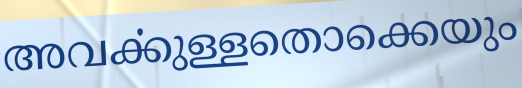
അവൎക്കുള്ളതൊക്കെയും